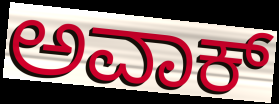
ಅವಾಕ್